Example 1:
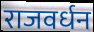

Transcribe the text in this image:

राजवर्धन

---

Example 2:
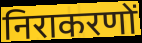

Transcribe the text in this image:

निराकरणों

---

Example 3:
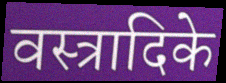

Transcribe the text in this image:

वस्त्रादिके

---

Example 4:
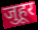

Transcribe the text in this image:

जुहूर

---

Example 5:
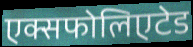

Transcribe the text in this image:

एक्सफोलिएटेड